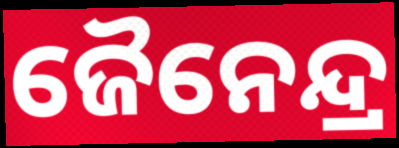
ଜୈନେନ୍ଦ୍ର